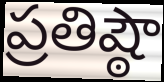
ప్రతిష్ఠౌ